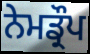
ਨੇਮਡ੍ਰੌਪ